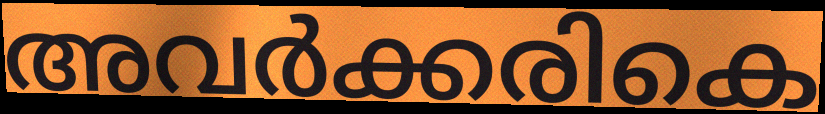
അവർക്കരികെ